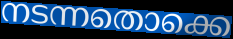
നടന്നതൊക്കെ